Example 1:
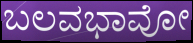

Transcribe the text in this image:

ಬಲವಭಾವೋ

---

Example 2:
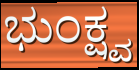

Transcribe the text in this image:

ಭುಂಕ್ಷ್ವ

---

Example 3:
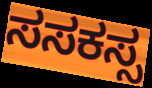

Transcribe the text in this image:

ಸಸಕಸ್ಸ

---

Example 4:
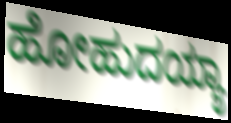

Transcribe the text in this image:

ಹೋಹುದಯ್ಯಾ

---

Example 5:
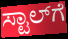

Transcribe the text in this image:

ಸ್ಟಾಲ್‌ಗೆ